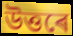
উত্তৰে